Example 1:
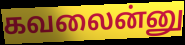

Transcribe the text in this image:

கவலைன்னு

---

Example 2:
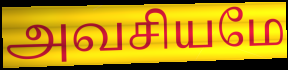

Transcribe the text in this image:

அவசியமே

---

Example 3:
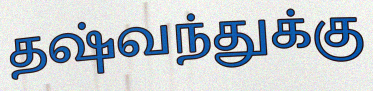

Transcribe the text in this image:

தஷ்வந்துக்கு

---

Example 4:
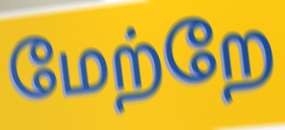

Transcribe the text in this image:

மேற்றே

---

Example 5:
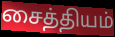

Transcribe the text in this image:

சைத்தியம்